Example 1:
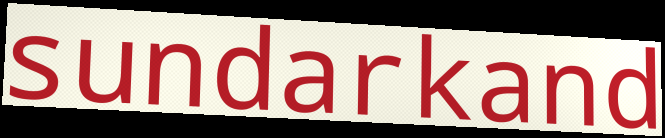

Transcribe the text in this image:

sundarkand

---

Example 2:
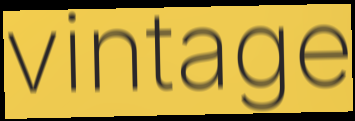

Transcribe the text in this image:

vintage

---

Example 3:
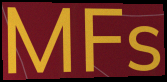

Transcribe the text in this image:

MFs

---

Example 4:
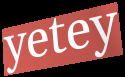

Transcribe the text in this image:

yetey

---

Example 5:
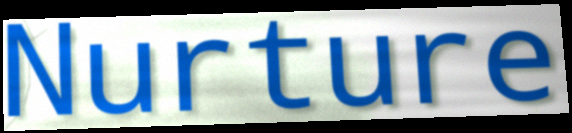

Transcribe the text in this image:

Nurture